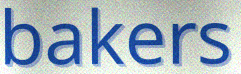
bakers